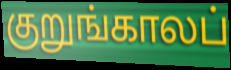
குறுங்காலப்